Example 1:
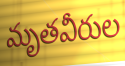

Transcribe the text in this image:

మృతవీరుల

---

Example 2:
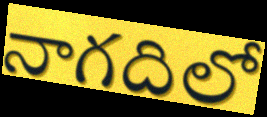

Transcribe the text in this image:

నాగదిలో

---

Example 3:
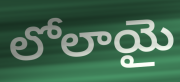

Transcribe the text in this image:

లోలాయై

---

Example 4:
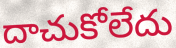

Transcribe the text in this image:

దాచుకోలేదు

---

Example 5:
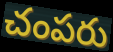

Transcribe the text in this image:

చంపరు